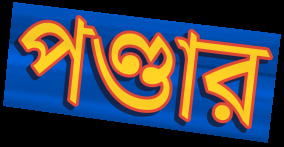
পণ্ডার